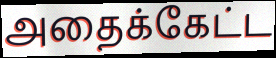
அதைக்கேட்ட